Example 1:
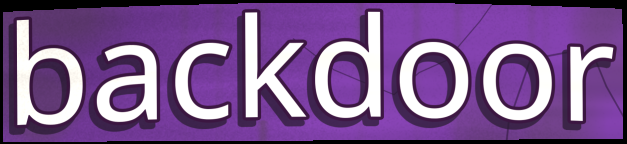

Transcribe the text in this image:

backdoor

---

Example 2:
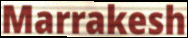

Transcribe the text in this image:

Marrakesh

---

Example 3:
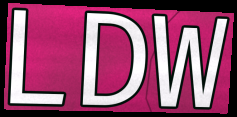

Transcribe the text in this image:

LDW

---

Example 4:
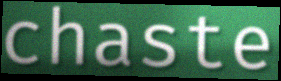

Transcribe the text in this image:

chaste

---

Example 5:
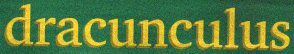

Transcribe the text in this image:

dracunculus